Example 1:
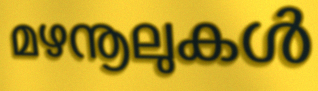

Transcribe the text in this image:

മഴനൂലുകൾ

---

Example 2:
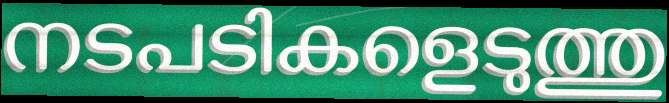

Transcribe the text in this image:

നടപടികളെടുത്തു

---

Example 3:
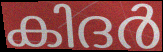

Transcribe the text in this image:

കിദർ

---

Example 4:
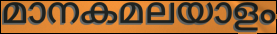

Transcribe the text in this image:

മാനകമലയാളം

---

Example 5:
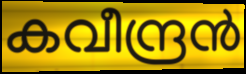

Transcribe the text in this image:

കവീന്ദ്രൻ